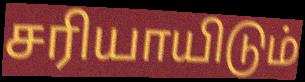
சரியாயிடும்